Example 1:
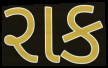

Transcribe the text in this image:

રાક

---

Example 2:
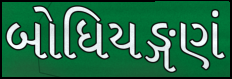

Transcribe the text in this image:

બોધિયઙ્ગણં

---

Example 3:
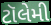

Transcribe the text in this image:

ટૉલેમી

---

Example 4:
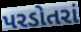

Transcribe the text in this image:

પરડોતરાં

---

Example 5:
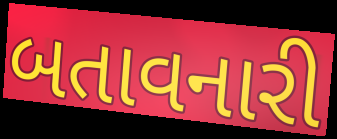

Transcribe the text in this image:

બતાવનારી